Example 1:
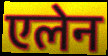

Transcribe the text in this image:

एलेन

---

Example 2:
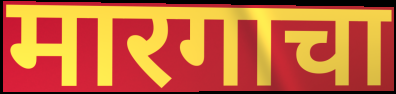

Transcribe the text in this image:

मारगाचा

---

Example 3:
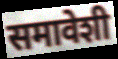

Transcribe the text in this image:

समावेशी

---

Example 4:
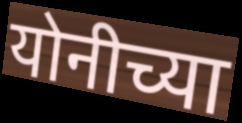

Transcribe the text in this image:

योनीच्या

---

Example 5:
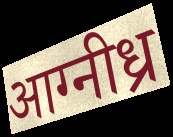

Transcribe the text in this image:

आग्नीध्र